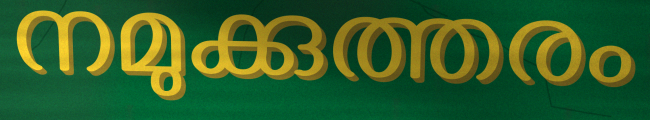
നമുക്കുത്തരം